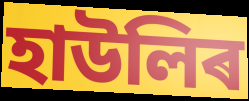
হাউলিৰ